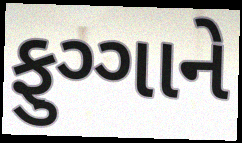
ફુગ્ગાને